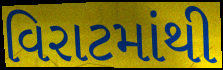
વિરાટમાંથી